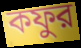
কফুর